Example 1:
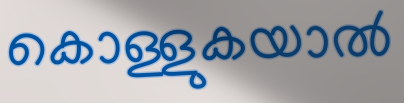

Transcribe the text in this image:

കൊള്ളുകയാൽ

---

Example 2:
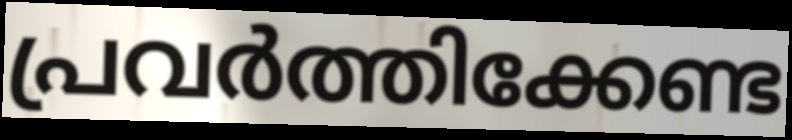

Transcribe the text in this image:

പ്രവർത്തിക്കേണ്ട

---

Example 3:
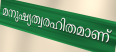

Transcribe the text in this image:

മനുഷ്യത്വരഹിതമാണ്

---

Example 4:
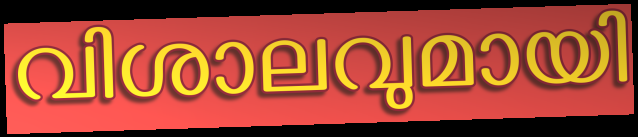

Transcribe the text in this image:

വിശാലവുമായി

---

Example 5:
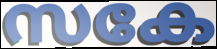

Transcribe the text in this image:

സകേ